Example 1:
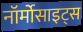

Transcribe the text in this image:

नॉर्मोसाइट्स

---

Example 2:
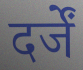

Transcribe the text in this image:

दर्जें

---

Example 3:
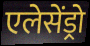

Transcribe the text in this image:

एलेसेंड्रो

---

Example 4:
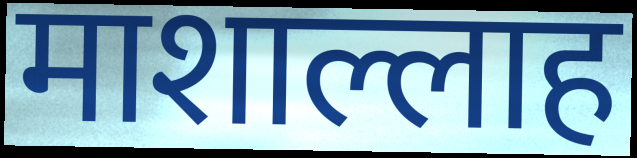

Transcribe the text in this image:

माशाल्लाह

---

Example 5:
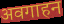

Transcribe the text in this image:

अवगाहन